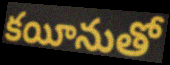
కయీనుతో